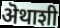
ऄथाशी